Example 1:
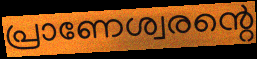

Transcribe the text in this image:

പ്രാണേശ്വരന്റെ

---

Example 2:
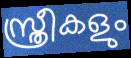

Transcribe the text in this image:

സ്ത്രീകളും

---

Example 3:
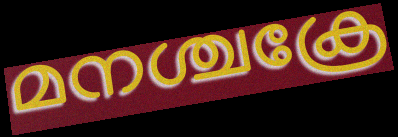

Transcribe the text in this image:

മനശ്ചക്രേ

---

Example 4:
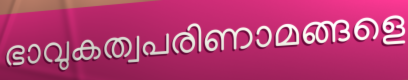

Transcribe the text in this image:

ഭാവുകത്വപരിണാമങ്ങളെ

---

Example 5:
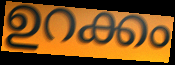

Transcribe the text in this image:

ഉറക്കം